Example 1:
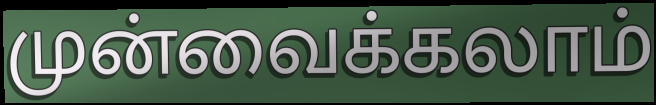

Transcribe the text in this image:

முன்வைக்கலாம்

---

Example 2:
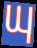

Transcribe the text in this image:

யு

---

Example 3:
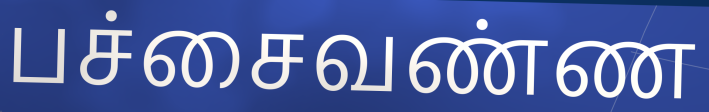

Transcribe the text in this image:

பச்சைவண்ண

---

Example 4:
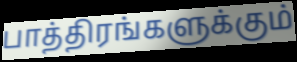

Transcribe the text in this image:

பாத்திரங்களுக்கும்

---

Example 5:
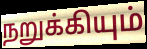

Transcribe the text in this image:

நறுக்கியும்